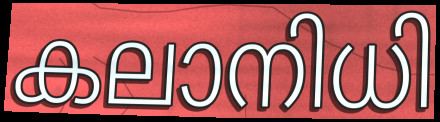
കലാനിധി